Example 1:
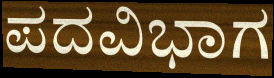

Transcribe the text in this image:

ಪದವಿಭಾಗ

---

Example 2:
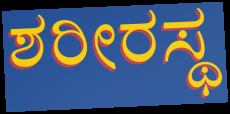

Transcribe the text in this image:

ಶರೀರಸ್ಥ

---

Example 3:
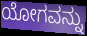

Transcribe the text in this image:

ಯೋಗವನ್ನು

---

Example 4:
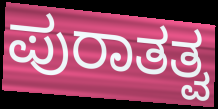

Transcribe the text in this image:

ಪುರಾತತ್ವ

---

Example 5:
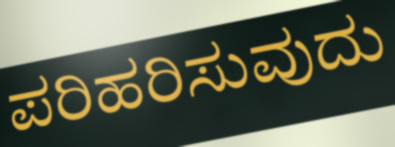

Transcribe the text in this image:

ಪರಿಹರಿಸುವುದು